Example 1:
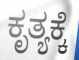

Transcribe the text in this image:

ಕೃತ್ಯಕ್ಕೆ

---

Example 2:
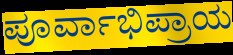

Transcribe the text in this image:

ಪೂರ್ವಾಭಿಪ್ರಾಯ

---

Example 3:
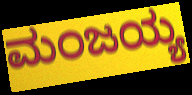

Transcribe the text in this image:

ಮಂಜಯ್ಯ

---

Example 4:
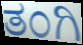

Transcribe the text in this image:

ತಂಗಿ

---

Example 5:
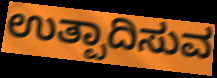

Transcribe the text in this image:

ಉತ್ಪಾದಿಸುವ